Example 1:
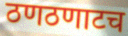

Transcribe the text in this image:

ठणठणाटच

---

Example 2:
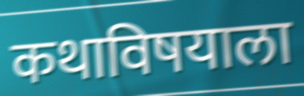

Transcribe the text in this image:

कथाविषयाला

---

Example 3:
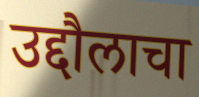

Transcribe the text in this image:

उद्दौलाचा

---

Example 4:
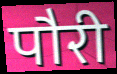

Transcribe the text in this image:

पौरी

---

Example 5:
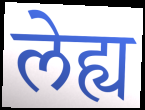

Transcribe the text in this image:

लेह्य